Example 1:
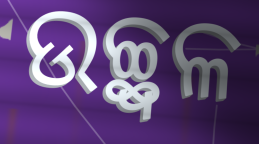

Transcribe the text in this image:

ଉଚ୍ଛ୍ଵଳ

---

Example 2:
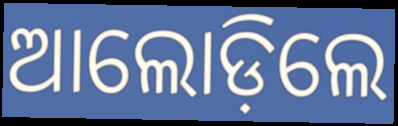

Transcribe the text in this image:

ଆଲୋଡ଼ିଲେ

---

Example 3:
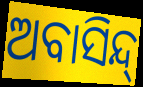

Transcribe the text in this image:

ଅବାସିନ୍ଦ୍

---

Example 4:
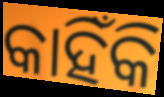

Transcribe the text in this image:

କାହିଁକି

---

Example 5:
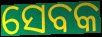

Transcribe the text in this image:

ସେବକ